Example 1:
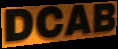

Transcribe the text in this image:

DCAB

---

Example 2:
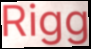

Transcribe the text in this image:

Rigg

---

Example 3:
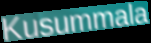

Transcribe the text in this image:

Kusummala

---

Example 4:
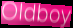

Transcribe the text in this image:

Oldboy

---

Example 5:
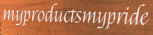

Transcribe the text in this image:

myproductsmypride